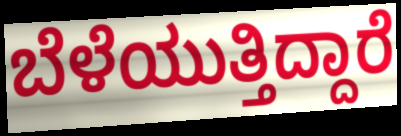
ಬೆಳೆಯುತ್ತಿದ್ದಾರೆ